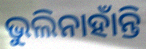
ଭୁଲିନାହାଁନ୍ତି